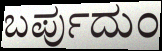
ಬರ್ಪುದುಂ